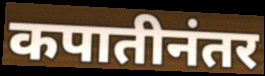
कपातीनंतर